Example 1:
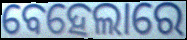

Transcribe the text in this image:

ବେହେଲାରେ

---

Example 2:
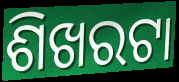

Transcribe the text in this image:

ଶିଖରଟା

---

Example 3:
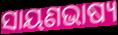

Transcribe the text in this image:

ସାୟଣଭାଷ୍ୟ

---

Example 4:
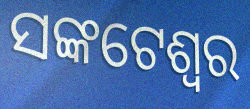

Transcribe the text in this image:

ସଙ୍କଟେଶ୍ୱର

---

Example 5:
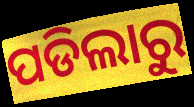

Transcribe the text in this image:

ପଡିଲାରୁ